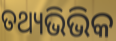
ତଥ୍ୟଭିଭିକ